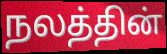
நலத்தின்